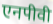
एनपीवी